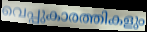
വെപ്പുകാരത്തികളും